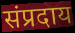
संप्रदाय